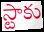
స్టాకు